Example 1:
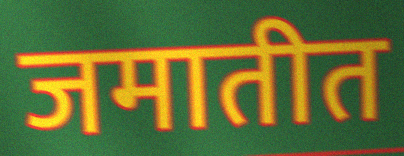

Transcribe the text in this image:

जमातीत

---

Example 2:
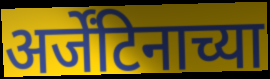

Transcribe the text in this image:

अर्जेंटिनाच्या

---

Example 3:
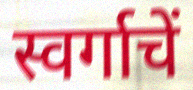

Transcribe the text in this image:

स्वर्गाचें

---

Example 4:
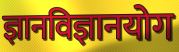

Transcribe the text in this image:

ज्ञानविज्ञानयोग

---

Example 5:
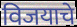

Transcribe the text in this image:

विजयाचे